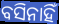
ବସିନାହିଁ